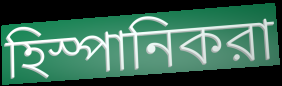
হিস্পানিকরা